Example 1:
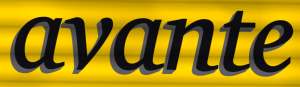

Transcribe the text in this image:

avante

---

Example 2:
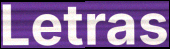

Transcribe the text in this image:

Letras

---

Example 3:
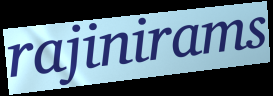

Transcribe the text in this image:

rajinirams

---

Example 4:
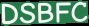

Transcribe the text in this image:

DSBFC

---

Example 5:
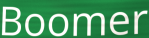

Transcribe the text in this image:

Boomer